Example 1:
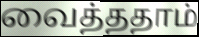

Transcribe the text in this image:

வைத்ததாம்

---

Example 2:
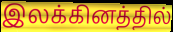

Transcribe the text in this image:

இலக்கினத்தில்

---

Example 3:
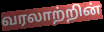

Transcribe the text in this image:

வரலாற்றின்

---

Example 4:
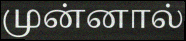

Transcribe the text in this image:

முன்னால்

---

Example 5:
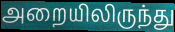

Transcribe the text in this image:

அறையிலிருந்து